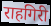
राहगिरी